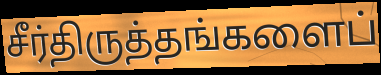
சீர்திருத்தங்களைப்